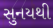
સુનયથી